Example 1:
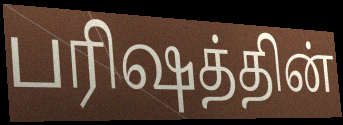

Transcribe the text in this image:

பரிஷத்தின்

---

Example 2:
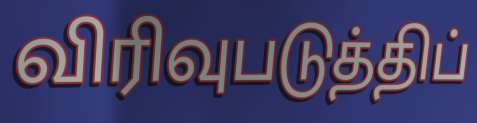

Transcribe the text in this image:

விரிவுபடுத்திப்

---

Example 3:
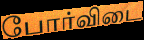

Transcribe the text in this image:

போர்விடை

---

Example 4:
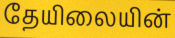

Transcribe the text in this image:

தேயிலையின்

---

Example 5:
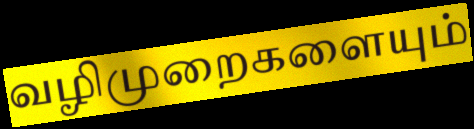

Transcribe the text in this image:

வழிமுறைகளையும்